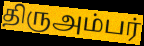
திருஅம்பர்